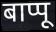
बाप्पू